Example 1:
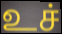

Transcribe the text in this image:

உச்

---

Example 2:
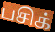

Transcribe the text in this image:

பசிக்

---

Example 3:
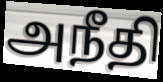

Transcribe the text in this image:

அநீதி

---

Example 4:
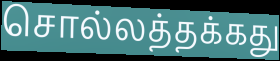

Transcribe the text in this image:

சொல்லத்தக்கது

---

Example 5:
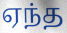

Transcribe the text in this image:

ஏந்த